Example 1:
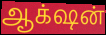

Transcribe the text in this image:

ஆக்‌ஷன்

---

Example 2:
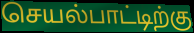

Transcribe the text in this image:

செயல்பாட்டிற்கு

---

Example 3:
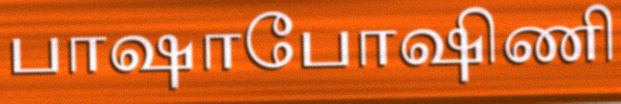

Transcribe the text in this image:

பாஷாபோஷிணி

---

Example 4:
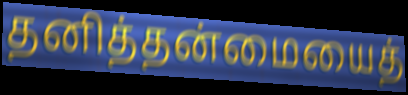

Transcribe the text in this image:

தனித்தன்மையைத்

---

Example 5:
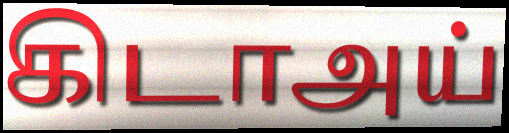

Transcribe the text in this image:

கிடாஅய்